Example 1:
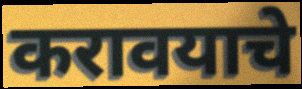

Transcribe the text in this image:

करावयाचे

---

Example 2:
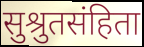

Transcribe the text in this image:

सुश्रुतसंहिता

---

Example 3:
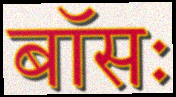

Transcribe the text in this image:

बॉसः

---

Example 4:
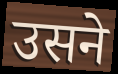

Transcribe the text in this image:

उसने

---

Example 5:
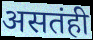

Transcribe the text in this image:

असतंही